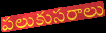
పలుకుసరాలు